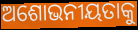
ଅଶୋଭନୀୟତାକୁ